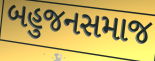
બહુજનસમાજ